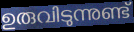
ഉരുവിടുന്നുണ്ട്